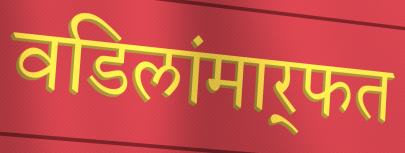
वडिलांमार्फत